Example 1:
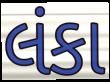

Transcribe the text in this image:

લંકા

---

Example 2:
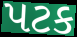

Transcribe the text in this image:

પટક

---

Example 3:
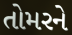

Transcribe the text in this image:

તોમરને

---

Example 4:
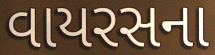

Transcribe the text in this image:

વાયરસના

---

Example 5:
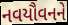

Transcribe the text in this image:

નવયૌવનને